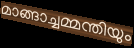
മാങ്ങാച്ചമ്മന്തിയും